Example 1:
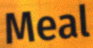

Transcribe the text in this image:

Meal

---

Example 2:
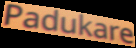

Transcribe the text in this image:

Padukare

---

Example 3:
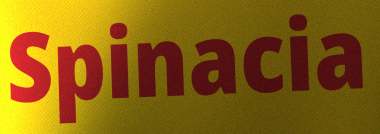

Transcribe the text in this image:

Spinacia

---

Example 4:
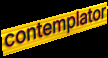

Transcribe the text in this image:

contemplator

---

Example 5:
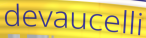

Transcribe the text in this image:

devaucelli